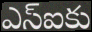
ఎస్ఐకు